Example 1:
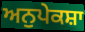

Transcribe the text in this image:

ਅਨੁਪੇਕਸ਼ਾ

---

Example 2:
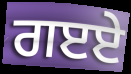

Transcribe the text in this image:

ਗੲਏ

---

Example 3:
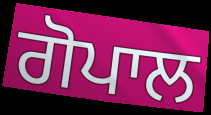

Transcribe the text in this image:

ਗੋਪਾਲ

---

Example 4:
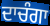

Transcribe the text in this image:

ਦਾਚੰਗਾ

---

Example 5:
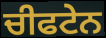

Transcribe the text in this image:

ਚੀਫਟੇਨ